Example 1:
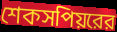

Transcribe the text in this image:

শেকসপিয়রের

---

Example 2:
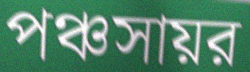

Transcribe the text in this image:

পঞ্চসায়র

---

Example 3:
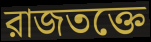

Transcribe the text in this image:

রাজতক্তে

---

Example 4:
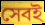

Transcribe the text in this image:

সেবই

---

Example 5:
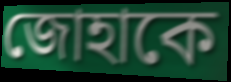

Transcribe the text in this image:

জোহাকে